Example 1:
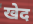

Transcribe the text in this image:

खेद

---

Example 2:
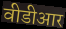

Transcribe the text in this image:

वीडीआर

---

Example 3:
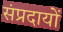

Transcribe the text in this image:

संप्रदायों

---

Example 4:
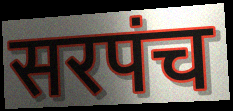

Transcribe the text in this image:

सरपंच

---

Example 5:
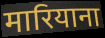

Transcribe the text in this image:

मारियाना